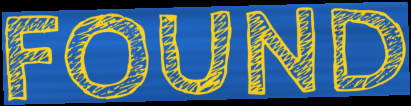
FOUND